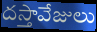
దస్తావేజులు